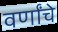
वर्णांचे